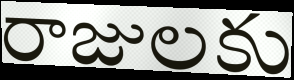
రాజులకు